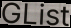
GList